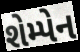
શેમ્પેન